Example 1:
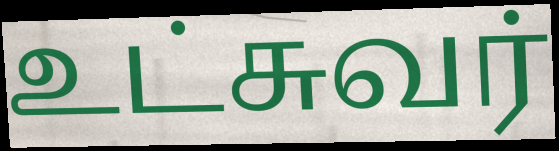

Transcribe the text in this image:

உட்சுவர்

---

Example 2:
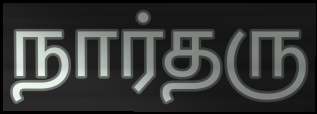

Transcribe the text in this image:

நார்தரு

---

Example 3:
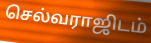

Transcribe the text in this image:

செல்வராஜிடம்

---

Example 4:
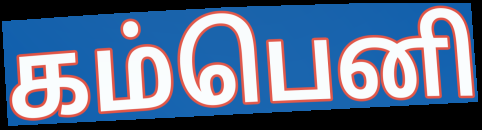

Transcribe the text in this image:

கம்பெனி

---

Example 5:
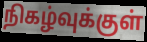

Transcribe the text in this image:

நிகழ்வுக்குள்